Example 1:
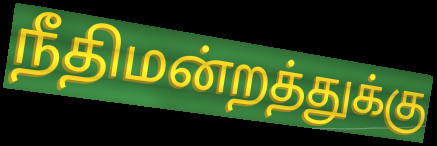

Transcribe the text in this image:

நீதிமன்றத்துக்கு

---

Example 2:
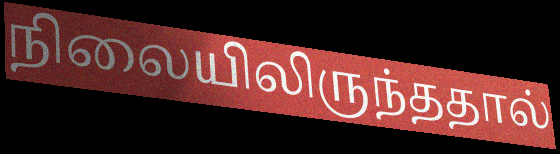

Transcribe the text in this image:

நிலையிலிருந்ததால்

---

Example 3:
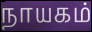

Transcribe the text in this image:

நாயகம்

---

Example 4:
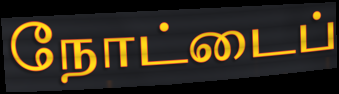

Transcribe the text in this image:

நோட்டைப்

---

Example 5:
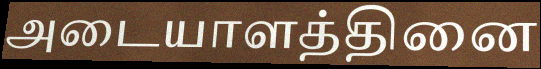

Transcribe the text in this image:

அடையாளத்தினை